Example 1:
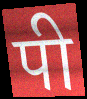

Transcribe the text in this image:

पी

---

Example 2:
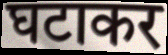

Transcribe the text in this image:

घटाकर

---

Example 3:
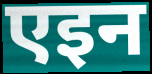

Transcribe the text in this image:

एइन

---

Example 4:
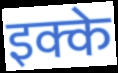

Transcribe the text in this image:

इक्के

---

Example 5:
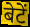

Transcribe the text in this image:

बेटें